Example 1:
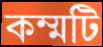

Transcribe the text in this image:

কম্মটি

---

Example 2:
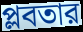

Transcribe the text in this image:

প্লবতার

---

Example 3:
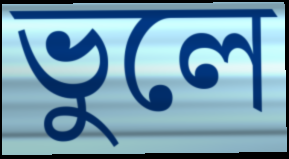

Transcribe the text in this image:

ভুলে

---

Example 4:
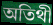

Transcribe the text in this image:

অতিথী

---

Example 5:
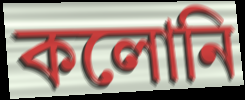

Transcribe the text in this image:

কলোনি